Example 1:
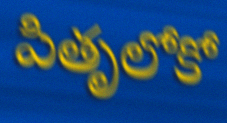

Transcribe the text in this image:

పితృలోకో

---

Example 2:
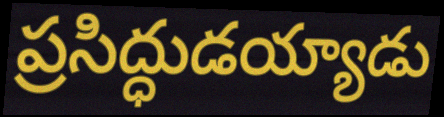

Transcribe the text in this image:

ప్రసిద్ధుడయ్యాడు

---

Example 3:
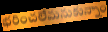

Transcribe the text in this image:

భరించలేమనుకున్నాం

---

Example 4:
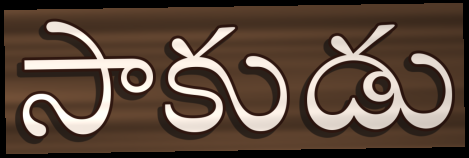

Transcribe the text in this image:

సాకుడు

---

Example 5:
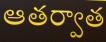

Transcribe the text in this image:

ఆతర్వాత